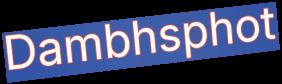
Dambhsphot